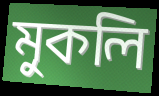
মুকলি